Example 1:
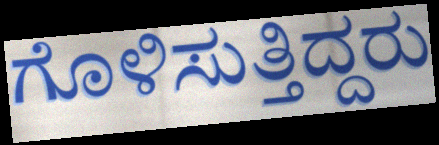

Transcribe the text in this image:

ಗೊಳಿಸುತ್ತಿದ್ದರು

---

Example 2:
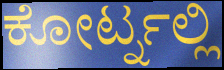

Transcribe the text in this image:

ಕೋರ್ಟ್ನಲ್ಲಿ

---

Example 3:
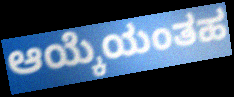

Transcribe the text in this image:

ಆಯ್ಕೆಯಂತಹ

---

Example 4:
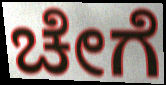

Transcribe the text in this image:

ಚೇಗೆ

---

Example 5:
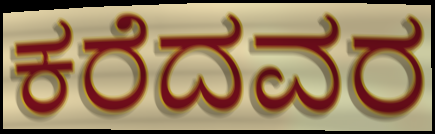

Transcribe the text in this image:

ಕರೆದವರ